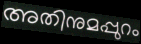
അതിനുമപ്പുറം